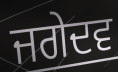
ਜਗੇਦਵ